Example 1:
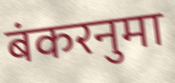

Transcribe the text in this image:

बंकरनुमा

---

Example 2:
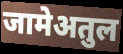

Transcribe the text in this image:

जामेअतुल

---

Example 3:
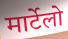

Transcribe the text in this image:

मार्टेलो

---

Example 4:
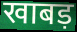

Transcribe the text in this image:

खाबड़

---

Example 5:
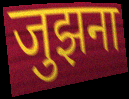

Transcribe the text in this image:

जुझना